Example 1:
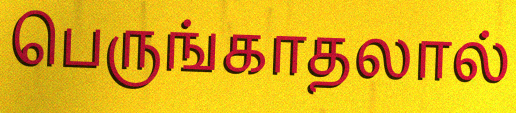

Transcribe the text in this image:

பெருங்காதலால்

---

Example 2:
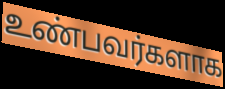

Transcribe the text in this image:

உண்பவர்களாக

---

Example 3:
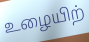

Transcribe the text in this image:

உழையிற்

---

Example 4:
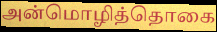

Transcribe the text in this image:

அன்மொழித்தொகை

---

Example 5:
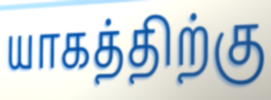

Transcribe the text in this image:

யாகத்திற்கு